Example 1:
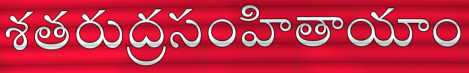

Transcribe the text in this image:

శతరుద్రసంహితాయాం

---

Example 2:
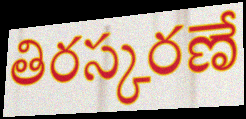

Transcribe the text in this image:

తిరస్కరణే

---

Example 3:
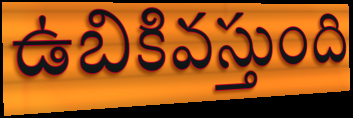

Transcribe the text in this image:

ఉబికివస్తుంది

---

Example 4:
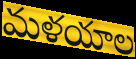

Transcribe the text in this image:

మళయాల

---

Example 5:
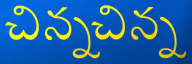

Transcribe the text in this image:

చిన్నచిన్న